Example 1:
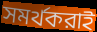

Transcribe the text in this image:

সমর্থকরাই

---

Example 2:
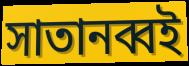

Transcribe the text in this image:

সাতানব্বই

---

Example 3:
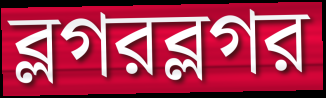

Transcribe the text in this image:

ব্লগরব্লগর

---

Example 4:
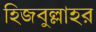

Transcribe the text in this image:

হিজবুল্লাহর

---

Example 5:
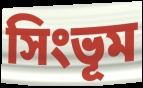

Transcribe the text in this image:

সিংভূম